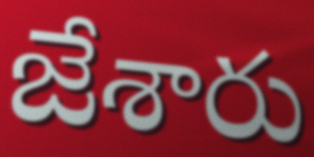
జేశారు